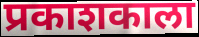
प्रकाशकाला